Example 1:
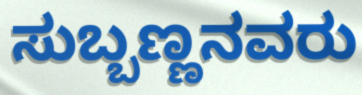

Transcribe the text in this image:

ಸುಬ್ಬಣ್ಣನವರು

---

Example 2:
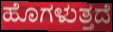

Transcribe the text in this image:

ಹೊಗಳುತ್ತದೆ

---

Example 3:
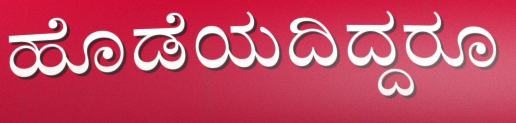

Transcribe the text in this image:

ಹೊಡೆಯದಿದ್ದರೂ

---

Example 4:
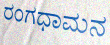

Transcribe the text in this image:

ರಂಗಧಾಮನ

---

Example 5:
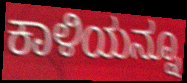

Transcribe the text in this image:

ಕಾಳಿಯನ್ನೂ